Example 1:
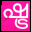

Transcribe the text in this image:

ഷ്ട്ര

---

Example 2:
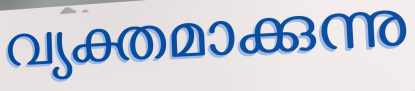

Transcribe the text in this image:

വ്യക്തമാക്കുന്നു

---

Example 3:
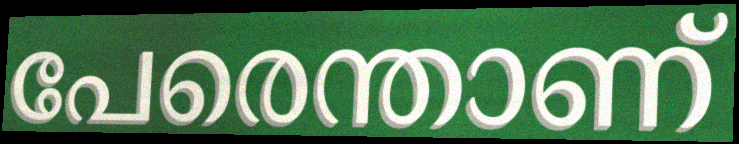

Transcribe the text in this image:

പേരെന്താണ്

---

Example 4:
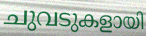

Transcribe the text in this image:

ചുവടുകളായി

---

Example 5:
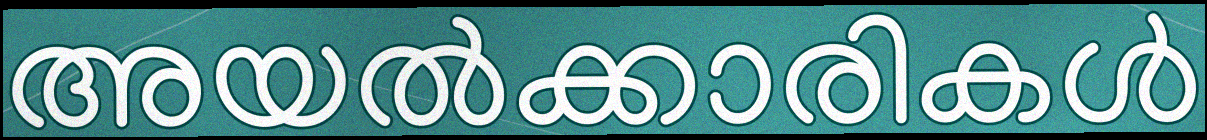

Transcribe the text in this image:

അയൽക്കാരികൾ